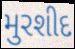
મુરશીદ